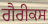
ਗੈਰੀਕਸ